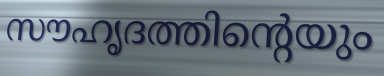
സൗഹൃദത്തിന്റെയും